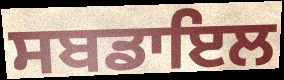
ਸਬਡਾਇਲ